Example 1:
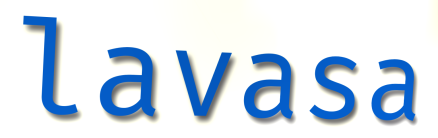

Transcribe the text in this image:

lavasa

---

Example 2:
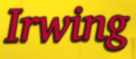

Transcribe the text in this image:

Irwing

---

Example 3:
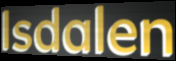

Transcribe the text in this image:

Isdalen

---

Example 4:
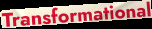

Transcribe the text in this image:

Transformational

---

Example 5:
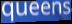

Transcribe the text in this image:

queens